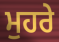
ਮੁਹਰੇ